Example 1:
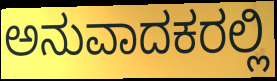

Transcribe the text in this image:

ಅನುವಾದಕರಲ್ಲಿ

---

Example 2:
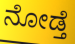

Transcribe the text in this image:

ನೋಡ್ತೆ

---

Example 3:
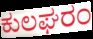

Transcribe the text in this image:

ಕುಲಘರಂ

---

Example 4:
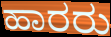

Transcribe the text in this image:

ಹಾರರು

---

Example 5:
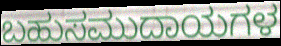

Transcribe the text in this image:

ಬಹುಸಮುದಾಯಗಳ